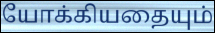
யோக்கியதையும்